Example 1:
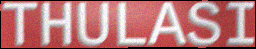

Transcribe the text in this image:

THULASI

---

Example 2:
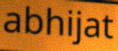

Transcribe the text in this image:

abhijat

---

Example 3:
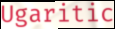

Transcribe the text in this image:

Ugaritic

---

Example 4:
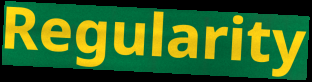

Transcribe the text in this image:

Regularity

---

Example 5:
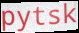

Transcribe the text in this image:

pytsk